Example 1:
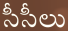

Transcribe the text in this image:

సీసీలు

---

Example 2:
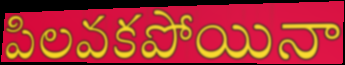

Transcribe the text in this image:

పిలవకపోయినా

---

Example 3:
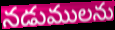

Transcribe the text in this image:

నడుములను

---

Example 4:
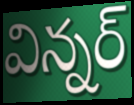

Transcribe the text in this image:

విన్నర్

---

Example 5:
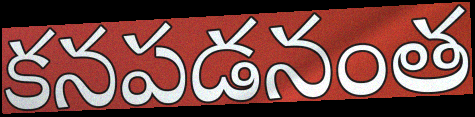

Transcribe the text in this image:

కనపడనంత